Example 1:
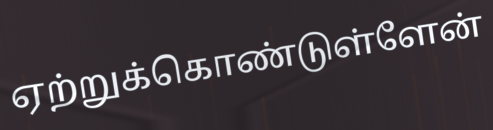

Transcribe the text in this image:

ஏற்றுக்கொண்டுள்ளேன்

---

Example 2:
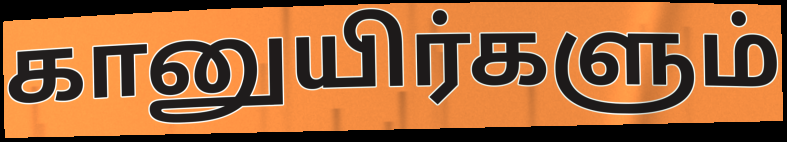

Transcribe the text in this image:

கானுயிர்களும்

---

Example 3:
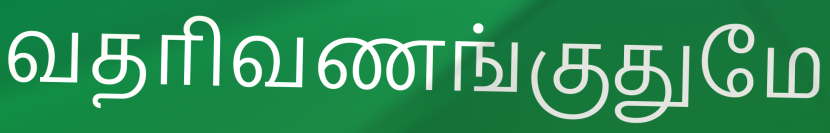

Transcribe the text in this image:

வதரிவணங்குதுமே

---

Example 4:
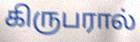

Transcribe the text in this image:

கிருபரால்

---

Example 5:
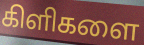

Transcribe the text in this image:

கிளிகளை